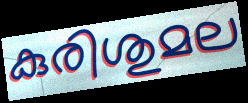
കുരിശുമല